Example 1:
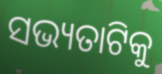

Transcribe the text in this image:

ସଭ୍ୟତାଟିକୁ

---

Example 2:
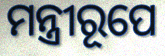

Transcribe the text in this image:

ମନ୍ତ୍ରୀରୂପେ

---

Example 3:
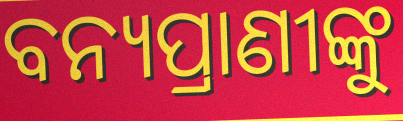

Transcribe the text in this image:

ବନ୍ୟପ୍ରାଣୀଙ୍କୁ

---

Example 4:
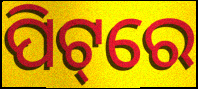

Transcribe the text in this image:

ପିଟ୍‌ରେ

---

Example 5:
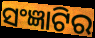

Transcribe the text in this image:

ସଂଜ୍ଞାଟିର